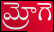
మ్రోగె